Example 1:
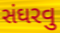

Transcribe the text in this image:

સંઘરવુ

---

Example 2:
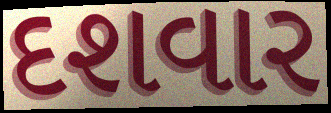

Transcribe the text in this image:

દશવાર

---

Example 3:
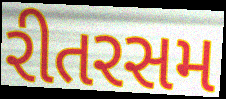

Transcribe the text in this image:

રીતરસમ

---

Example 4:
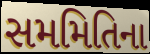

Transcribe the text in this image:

સમમિતિના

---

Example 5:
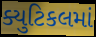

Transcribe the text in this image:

ક્યુટિકલમાં